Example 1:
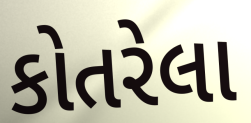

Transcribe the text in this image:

કોતરેલા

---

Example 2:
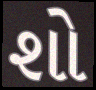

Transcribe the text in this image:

શો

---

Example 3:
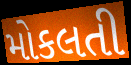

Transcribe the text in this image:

મોકલતી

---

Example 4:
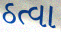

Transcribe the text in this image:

ઠત્વા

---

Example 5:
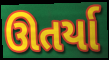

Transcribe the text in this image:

ઊતર્યા